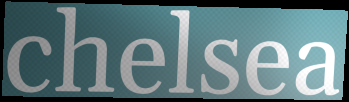
chelsea